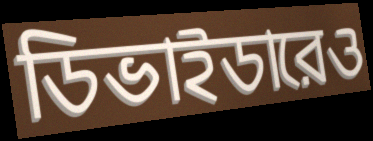
ডিভাইডারেও